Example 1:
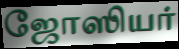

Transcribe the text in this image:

ஜோஸியர்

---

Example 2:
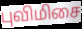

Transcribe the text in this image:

புவிமிசை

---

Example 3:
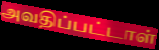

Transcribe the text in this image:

அவதிப்பட்டாள்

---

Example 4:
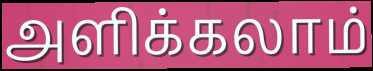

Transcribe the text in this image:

அளிக்கலாம்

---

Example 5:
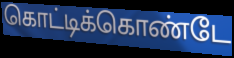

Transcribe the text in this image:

கொட்டிக்கொண்டே